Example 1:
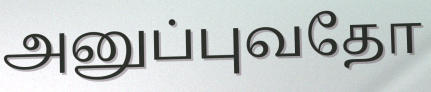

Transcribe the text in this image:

அனுப்புவதோ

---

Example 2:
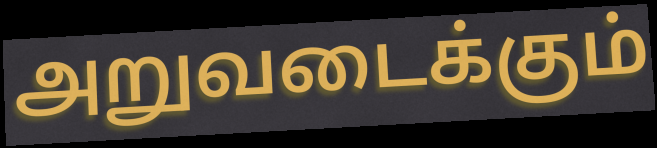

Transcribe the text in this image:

அறுவடைக்கும்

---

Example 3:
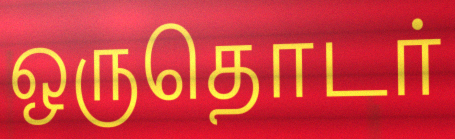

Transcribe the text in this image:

ஒருதொடர்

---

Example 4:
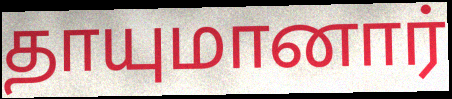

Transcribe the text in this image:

தாயுமானார்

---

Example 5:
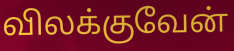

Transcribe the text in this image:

விலக்குவேன்